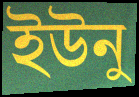
ইউনু